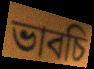
ভাবচি